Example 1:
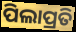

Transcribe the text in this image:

ପିଲାପ୍ରତି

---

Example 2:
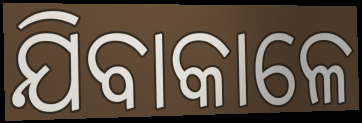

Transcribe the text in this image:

ଯିବାକାଳେ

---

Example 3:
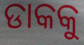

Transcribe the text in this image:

ଡାକକୁ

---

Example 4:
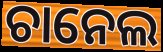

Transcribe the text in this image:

ଚାନେଲ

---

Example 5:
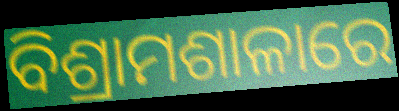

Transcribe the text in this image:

ବିଶ୍ରାମଶାଳାରେ